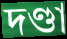
দণ্ডা